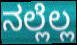
ನಲ್ಲೆಲ್ಲ